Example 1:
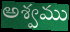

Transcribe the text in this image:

అశ్వము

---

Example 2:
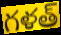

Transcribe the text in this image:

గళత్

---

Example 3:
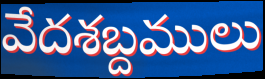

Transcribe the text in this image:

వేదశబ్దములు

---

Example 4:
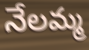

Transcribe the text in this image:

నేలమ్మ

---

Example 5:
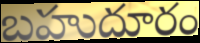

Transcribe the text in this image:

బహుదూరం